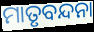
ମାତୃବନ୍ଦନା